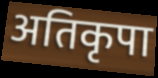
अतिकृपा